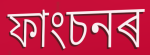
ফাংচনৰ